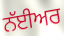
ਨੱਈਅਰ